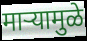
माऱ्यामुळे